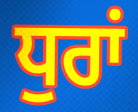
ਧੁਰਾਂ